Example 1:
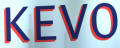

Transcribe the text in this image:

KEVO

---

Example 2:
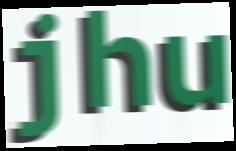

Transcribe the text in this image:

jhu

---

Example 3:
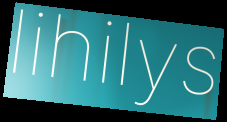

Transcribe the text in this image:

lihilys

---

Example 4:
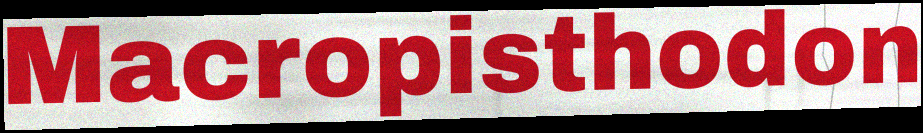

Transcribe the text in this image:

Macropisthodon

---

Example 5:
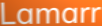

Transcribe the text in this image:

Lamarr